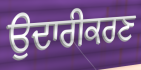
ਉਦਾਰੀਕਰਣ